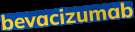
bevacizumab